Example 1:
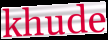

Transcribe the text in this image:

khude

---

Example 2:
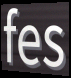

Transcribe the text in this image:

fes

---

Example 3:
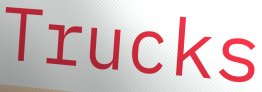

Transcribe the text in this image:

Trucks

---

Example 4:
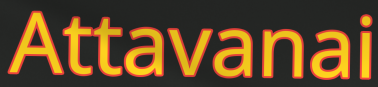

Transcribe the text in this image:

Attavanai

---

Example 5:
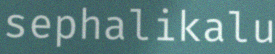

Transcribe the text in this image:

sephalikalu